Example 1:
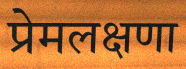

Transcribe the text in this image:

प्रेमलक्षणा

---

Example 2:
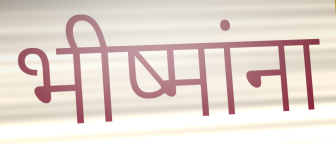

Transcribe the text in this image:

भीष्मांना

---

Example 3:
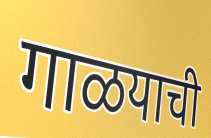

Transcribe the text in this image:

गाळयाची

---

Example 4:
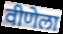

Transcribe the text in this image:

वीणेला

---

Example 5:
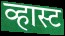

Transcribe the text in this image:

व्हास्ट